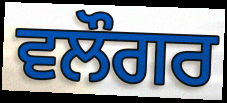
ਵਲੌਗਰ